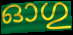
ഓഗു